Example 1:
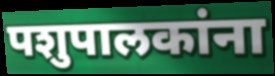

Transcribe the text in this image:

पशुपालकांना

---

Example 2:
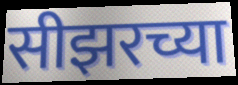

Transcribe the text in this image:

सीझरच्या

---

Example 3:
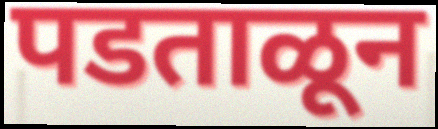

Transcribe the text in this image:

पडताळून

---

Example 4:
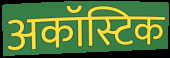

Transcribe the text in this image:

अकॉस्टिक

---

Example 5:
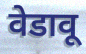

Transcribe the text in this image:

वेडावू